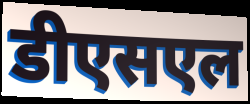
डीएसएल